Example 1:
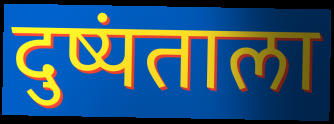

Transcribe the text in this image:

दुष्यंताला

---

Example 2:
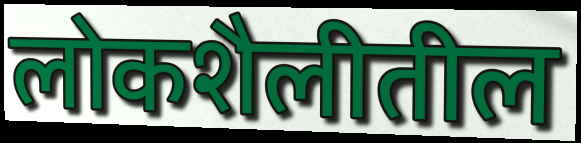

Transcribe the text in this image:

लोकशैलीतील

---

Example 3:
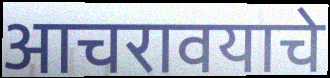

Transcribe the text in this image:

आचरावयाचे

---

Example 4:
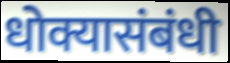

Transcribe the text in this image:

धोक्यासंबंधी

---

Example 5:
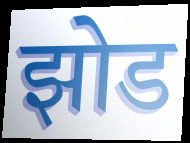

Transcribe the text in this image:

झोड